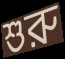
শুরু